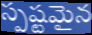
స్పష్టమైన